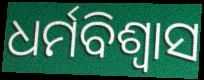
ଧର୍ମବିଶ୍ବାସ